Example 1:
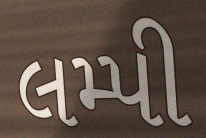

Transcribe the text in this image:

લમ્પી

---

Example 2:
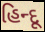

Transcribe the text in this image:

હિન્દૂ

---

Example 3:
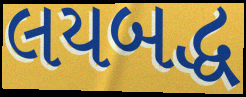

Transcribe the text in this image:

લયબદ્ધ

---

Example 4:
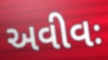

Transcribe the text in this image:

અવીવઃ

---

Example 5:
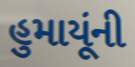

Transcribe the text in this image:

હુમાયૂંની